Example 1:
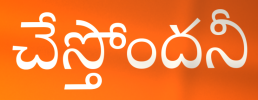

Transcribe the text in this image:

చేస్తోందనీ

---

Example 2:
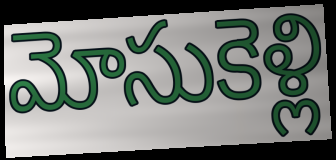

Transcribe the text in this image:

మోసుకెళ్లి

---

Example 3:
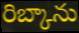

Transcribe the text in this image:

రిబ్కాను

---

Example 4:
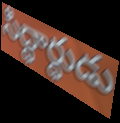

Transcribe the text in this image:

సిద్ధార్ధుడు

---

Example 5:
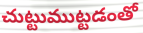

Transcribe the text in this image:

చుట్టుముట్టడంతో